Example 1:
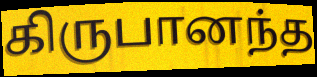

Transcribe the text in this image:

கிருபானந்த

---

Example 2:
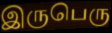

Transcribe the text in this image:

இருபெரு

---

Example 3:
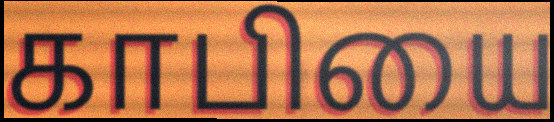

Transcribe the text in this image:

காபியை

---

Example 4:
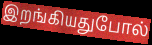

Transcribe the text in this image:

இறங்கியதுபோல்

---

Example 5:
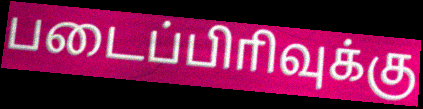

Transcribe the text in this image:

படைப்பிரிவுக்கு